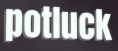
potluck